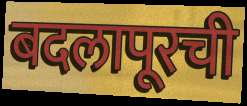
बदलापूरची